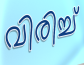
വിരിച്ച്